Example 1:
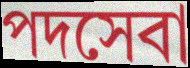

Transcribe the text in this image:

পদসেবা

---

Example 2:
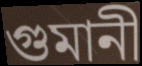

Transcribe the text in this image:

গুমানী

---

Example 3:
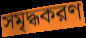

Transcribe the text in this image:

সমৃদ্ধকরণ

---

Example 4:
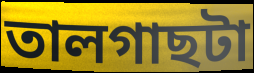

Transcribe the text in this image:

তালগাছটা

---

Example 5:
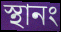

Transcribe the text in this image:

স্থানং